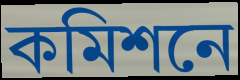
কমিশনে